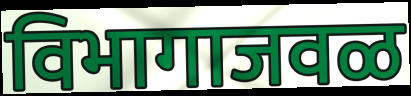
विभागाजवळ